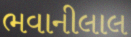
ભવાનીલાલ